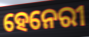
ହେନେରୀ